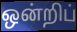
ஒன்றிப்